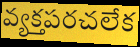
వ్యక్తపరచలేక